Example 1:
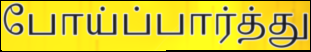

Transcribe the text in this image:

போய்ப்பார்த்து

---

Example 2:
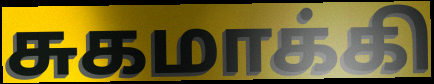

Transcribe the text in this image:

சுகமாக்கி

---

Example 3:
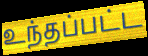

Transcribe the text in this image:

உந்தப்பட்ட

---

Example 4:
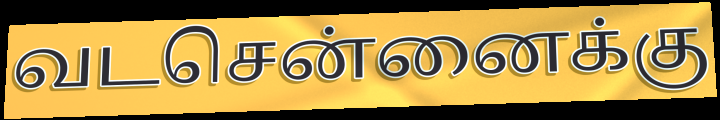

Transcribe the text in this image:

வடசென்னைக்கு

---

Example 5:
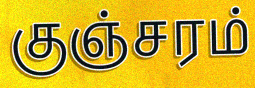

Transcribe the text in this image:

குஞ்சரம்